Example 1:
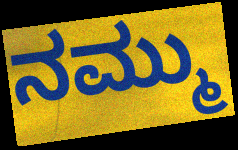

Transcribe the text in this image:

ನಮ್ಮು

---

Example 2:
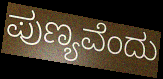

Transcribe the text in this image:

ಪುಣ್ಯವೆಂದು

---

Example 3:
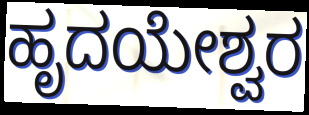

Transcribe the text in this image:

ಹೃದಯೇಶ್ವರ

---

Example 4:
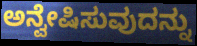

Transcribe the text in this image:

ಅನ್ವೇಷಿಸುವುದನ್ನು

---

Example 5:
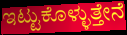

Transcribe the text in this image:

ಇಟ್ಟುಕೊಳ್ಳುತ್ತೇನೆ